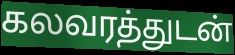
கலவரத்துடன்